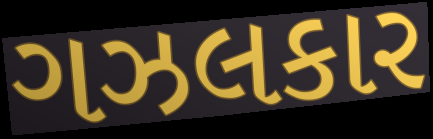
ગઝલકાર